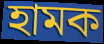
হামক